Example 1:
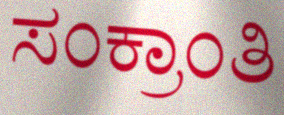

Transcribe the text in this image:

ಸಂಕ್ರಾಂತಿ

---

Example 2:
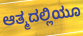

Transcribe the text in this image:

ಆತ್ಮದಲ್ಲಿಯೂ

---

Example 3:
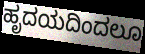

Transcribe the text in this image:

ಹೃದಯದಿಂದಲೂ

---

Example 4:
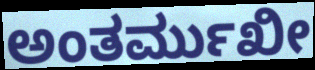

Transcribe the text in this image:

ಅಂತರ್ಮುಖೀ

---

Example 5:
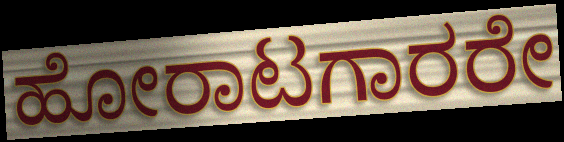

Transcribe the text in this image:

ಹೋರಾಟಗಾರರೇ